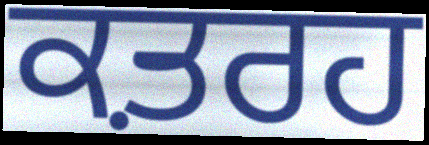
ਕ਼ਤਰਹ